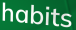
habits